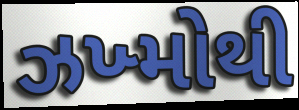
ઝખ્મોથી